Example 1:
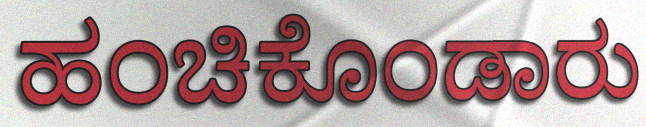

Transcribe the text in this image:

ಹಂಚಿಕೊಂಡಾರು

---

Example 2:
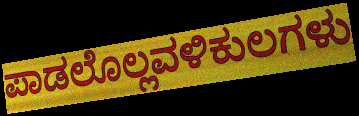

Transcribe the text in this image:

ಪಾಡಲೊಲ್ಲವಳಿಕುಲಗಳು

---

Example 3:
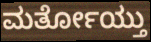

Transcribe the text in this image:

ಮರ್ತೋಯ್ತು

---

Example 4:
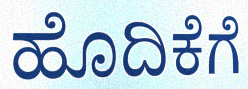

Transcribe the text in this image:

ಹೊದಿಕೆಗೆ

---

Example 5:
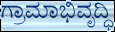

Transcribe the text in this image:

ಗ್ರಾಮಾಭಿವೃದ್ಧಿ